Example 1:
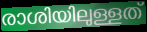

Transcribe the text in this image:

രാശിയിലുള്ളത്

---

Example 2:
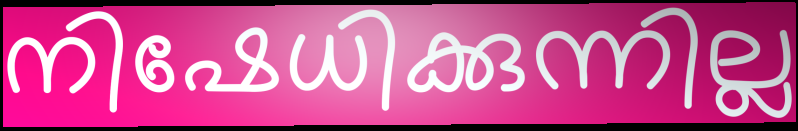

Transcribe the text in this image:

നിഷേധിക്കുന്നില്ല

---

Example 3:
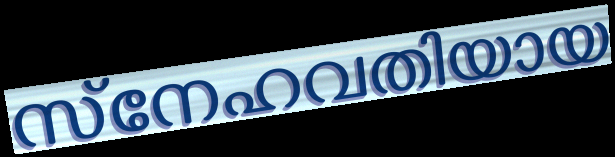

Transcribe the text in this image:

സ്‌നേഹവതിയായ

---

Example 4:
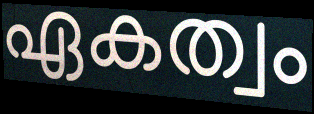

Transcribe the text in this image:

ഏകത്വം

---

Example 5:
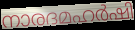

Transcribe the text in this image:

നാരദമഹർഷി